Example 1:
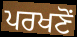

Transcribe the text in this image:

ਪਰਖਣੋਂ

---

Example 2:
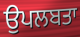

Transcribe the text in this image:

ਉਪਲਬਤਾ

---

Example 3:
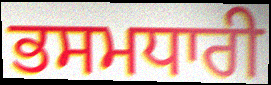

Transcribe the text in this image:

ਭਸਮਧਾਰੀ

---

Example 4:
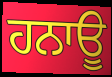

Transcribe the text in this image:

ਹਨਾਊ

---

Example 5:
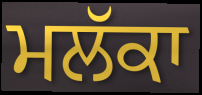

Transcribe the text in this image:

ਮਲੱਕਾ